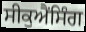
ਸੀਕੁਐਂਸਿੰਗ